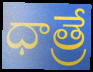
ధాత్రే